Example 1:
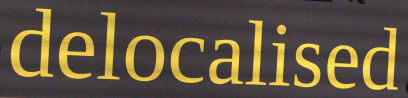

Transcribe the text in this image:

delocalised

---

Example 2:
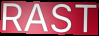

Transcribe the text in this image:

RAST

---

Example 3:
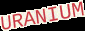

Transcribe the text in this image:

URANIUM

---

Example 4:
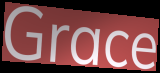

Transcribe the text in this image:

Grace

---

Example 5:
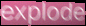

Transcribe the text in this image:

explode